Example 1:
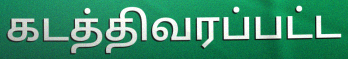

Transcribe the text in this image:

கடத்திவரப்பட்ட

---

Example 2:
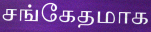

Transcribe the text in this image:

சங்கேதமாக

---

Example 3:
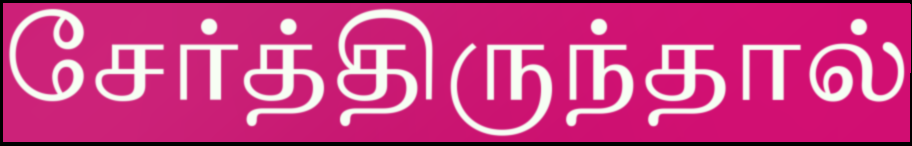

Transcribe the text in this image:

சேர்த்திருந்தால்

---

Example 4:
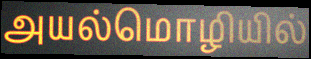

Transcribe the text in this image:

அயல்மொழியில்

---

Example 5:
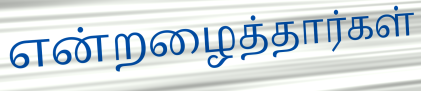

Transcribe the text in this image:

என்றழைத்தார்கள்